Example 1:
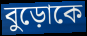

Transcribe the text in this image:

বুড়োকে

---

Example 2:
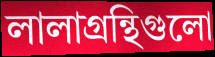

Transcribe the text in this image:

লালাগ্রন্থিগুলো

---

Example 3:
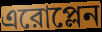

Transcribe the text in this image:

এরোপ্লেন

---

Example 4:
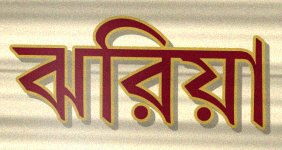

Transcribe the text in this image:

ঝরিয়া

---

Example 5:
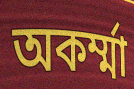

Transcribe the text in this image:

অকর্ম্মা